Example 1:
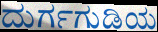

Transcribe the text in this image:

ದುರ್ಗಗುಡಿಯ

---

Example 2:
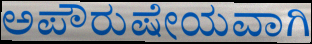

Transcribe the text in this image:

ಅಪೌರುಷೇಯವಾಗಿ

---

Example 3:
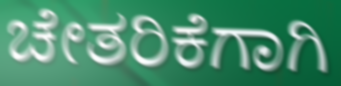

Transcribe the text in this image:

ಚೇತರಿಕೆಗಾಗಿ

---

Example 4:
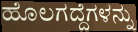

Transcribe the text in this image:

ಹೊಲಗದ್ದೆಗಳನ್ನು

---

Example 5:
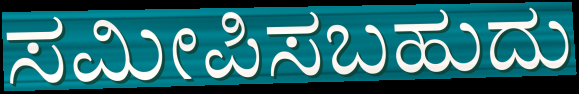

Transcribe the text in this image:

ಸಮೀಪಿಸಬಹುದು